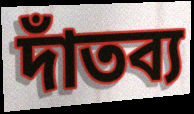
দাঁতব্য